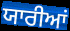
ਯਾਰੀਆਂ